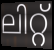
ലിറ്റ്